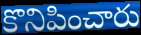
కొనిపించారు